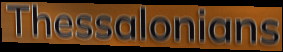
Thessalonians